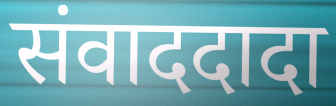
संवाददादा